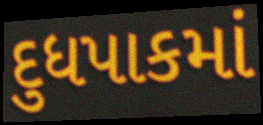
દુધપાકમાં